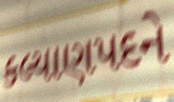
કલ્યાણપદને